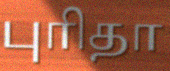
புரிதா